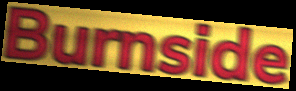
Burnside